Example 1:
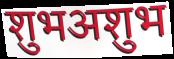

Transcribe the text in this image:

शुभअशुभ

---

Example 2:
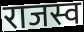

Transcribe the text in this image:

राजस्व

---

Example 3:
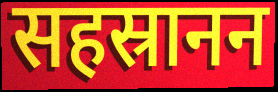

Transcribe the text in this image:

सहस्रानन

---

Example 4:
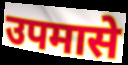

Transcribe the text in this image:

उपमासे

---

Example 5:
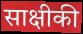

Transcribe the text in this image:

साक्षीकी